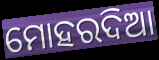
ମୋହରଦିଆ